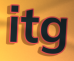
itg